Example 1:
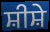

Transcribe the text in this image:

ਸ਼ੀਸ਼ੇ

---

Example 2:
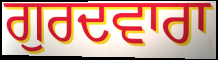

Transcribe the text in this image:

ਗੁਰਦਵਾਰਾ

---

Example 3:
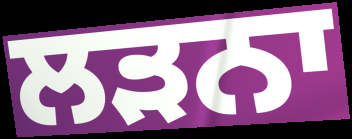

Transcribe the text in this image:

ਲੜਨਾ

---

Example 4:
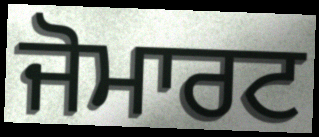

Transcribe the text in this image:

ਜੋਮਾਰਟ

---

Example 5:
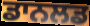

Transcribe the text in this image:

ਡਾਨਲਡ